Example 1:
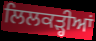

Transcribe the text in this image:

ਲਿਲਕੜ੍ਹੀਆਂ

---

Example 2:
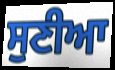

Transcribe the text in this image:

ਸੁਣੀਆ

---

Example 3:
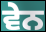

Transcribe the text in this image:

ਵੇਨ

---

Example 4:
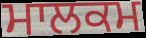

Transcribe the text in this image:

ਮਾਲਕਮ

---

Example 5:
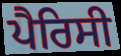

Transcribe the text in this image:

ਪੈਰਿਸੀ